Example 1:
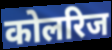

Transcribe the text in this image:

कोलरिज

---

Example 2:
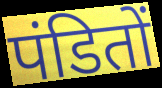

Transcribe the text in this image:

पंडितों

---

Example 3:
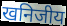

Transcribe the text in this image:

खनिजीय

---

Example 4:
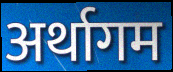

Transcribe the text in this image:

अर्थागम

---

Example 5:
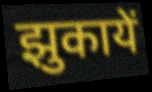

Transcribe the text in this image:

झुकायें